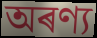
অৰণ্য